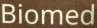
Biomed